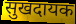
सुखदायक